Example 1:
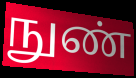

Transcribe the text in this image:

நுண்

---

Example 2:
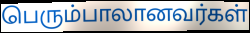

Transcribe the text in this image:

பெரும்பாலானவர்கள்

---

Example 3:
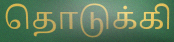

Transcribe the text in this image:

தொடுக்கி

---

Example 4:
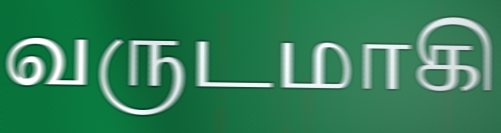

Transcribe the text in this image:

வருடமாகி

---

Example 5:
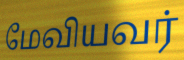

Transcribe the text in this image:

மேவியவர்